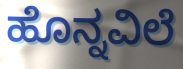
ಹೊನ್ನವಿಲೆ